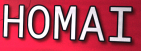
HOMAI